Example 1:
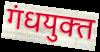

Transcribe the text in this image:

गंधयुक्‍त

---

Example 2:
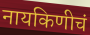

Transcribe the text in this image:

नायकिणीचं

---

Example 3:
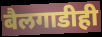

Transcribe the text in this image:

बैलगाडीही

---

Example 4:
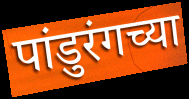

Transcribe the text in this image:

पांडुरंगच्या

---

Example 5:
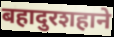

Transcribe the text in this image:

बहादुरशहाने